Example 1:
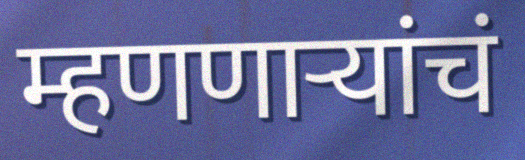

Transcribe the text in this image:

म्हणणाऱ्यांचं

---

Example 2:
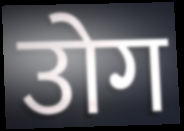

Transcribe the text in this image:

उोग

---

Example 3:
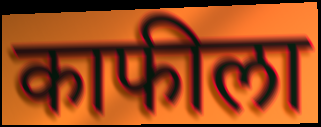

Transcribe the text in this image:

काफीला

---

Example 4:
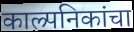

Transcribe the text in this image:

काल्पनिकांचा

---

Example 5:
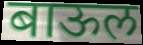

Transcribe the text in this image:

बाऊल